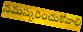
నమస్కరించుకోవాలి